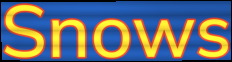
Snows